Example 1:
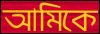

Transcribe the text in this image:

আমিকে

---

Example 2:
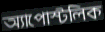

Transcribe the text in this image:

অ্যাপোস্টলিক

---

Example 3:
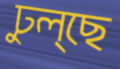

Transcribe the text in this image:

ঢুল্‌ছে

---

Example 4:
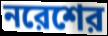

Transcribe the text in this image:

নরেশের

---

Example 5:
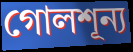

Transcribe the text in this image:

গোলশূন্য